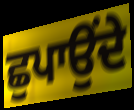
ਛੁਪਾਉਂਦੇ